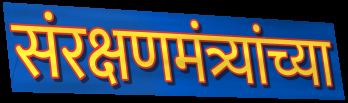
संरक्षणमंत्र्यांच्या